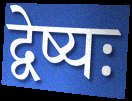
द्वेष्यः